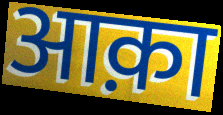
आक़ा